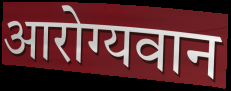
आरोग्यवान